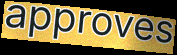
approves